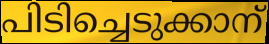
പിടിച്ചെടുക്കാന്